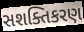
સશક્તિકરણ